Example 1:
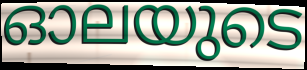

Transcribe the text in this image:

ഓലയുടെ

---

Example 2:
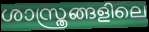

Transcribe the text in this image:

ശാസ്ത്രങ്ങളിലെ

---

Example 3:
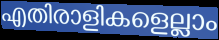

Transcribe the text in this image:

എതിരാളികളെല്ലാം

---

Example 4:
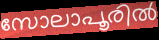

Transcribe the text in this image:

സോലാപൂരിൽ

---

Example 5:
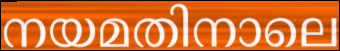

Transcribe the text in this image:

നയമതിനാലെ